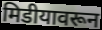
मिडीयावरून